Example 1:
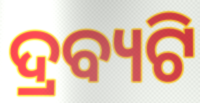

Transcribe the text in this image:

ଦ୍ରବ୍ୟଟି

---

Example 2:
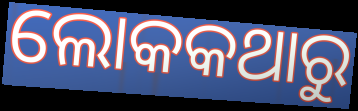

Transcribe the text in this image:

ଲୋକକଥାରୁ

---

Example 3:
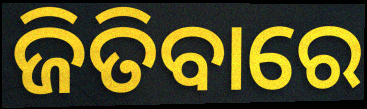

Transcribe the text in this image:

ଜିତିବାରେ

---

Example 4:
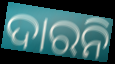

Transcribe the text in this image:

ଦାରନି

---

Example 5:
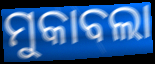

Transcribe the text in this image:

ମୁକାବଲା